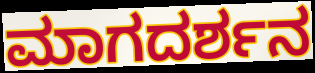
ಮಾಗದರ್ಶನ